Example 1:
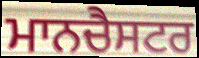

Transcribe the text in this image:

ਮਾਨਚੈਸਟਰ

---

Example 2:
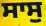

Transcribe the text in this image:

ਸਾਸੁ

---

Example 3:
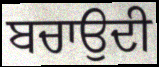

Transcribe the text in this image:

ਬਚਾਉਦੀ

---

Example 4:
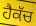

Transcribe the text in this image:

ਹੈਕੱਚ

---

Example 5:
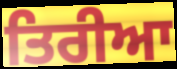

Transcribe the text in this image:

ਤਿਰੀਆ